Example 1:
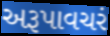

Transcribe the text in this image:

અરૂપાવચરં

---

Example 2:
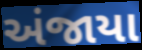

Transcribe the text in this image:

અંજાયા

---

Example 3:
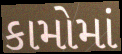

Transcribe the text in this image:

કામોમાં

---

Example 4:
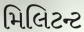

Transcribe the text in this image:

મિલિટન્ટ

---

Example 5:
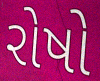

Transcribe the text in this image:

રોષો